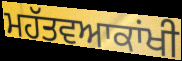
ਮਹੱਤਵਆਕਾਂਖੀ